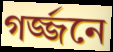
গর্জ্জনে